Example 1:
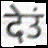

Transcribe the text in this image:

देउं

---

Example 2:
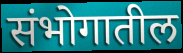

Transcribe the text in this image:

संभोगातील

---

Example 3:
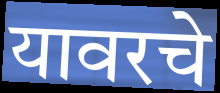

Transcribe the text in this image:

यावरचे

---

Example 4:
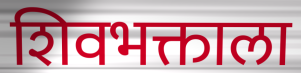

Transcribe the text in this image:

शिवभक्ताला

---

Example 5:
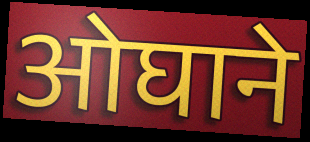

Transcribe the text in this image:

ओघाने